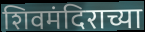
शिवमंदिराच्या